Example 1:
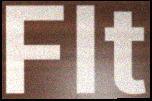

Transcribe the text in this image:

Flt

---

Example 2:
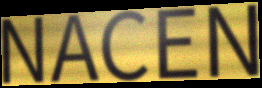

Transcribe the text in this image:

NACEN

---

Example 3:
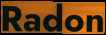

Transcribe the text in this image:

Radon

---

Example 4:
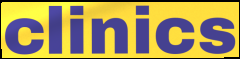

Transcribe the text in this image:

clinics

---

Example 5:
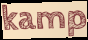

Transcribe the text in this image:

kamp